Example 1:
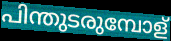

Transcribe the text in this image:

പിന്തുടരുമ്പോള്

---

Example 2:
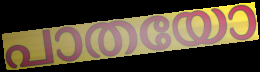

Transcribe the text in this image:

പാതയോ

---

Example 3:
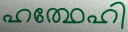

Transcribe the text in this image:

ഹത്ഥേഹി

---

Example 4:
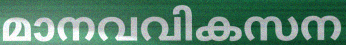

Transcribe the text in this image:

മാനവവികസന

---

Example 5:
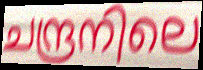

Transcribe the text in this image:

ചന്ദ്രനിലെ